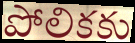
పోలికకు